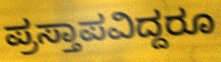
ಪ್ರಸ್ತಾಪವಿದ್ದರೂ